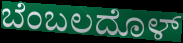
ಬೆಂಬಲದೊಳ್